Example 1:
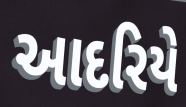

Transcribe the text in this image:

આદરિયે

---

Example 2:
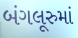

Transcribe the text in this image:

બંગલૂરુમાં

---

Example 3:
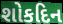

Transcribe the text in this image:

શોકદિન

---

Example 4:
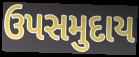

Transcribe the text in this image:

ઉપસમુદાય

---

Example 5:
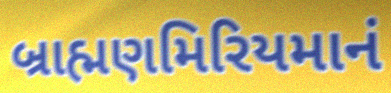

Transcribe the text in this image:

બ્રાહ્મણમિરિયમાનં